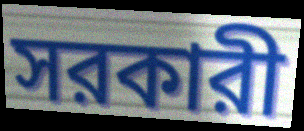
সরকারী